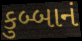
કુબ્બાનં